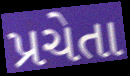
પ્રચેતા